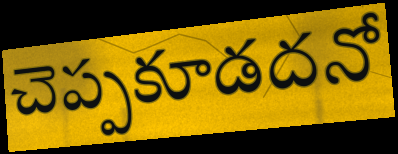
చెప్పకూడదనో